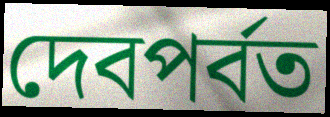
দেবপর্বত